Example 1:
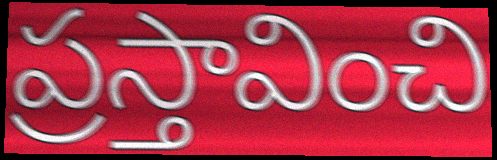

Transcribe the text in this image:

ప్రస్తావించి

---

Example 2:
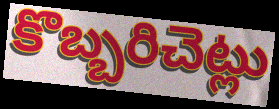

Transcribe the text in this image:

కొబ్బరిచెట్లు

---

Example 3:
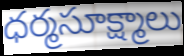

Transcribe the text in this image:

ధర్మసూక్ష్మాలు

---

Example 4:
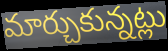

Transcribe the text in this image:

మార్చుకున్నట్లు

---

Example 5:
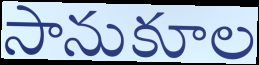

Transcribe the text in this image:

సానుకూల